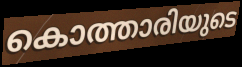
കൊത്താരിയുടെ